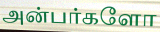
அன்பர்களோ